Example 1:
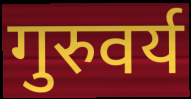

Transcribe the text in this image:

गुरुवर्य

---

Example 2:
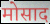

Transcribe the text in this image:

मोसाद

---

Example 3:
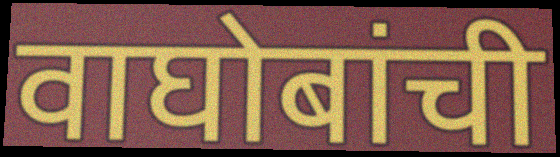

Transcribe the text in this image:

वाघोबांची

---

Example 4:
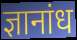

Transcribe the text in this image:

ज्ञानांध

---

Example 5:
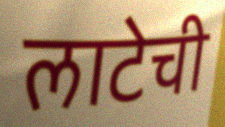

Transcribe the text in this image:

लाटेची